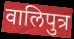
वालिपुत्र